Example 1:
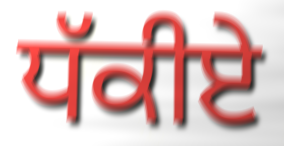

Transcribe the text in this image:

ਧੱਕੀਏ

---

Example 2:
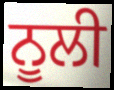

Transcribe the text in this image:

ਨੂਲੀ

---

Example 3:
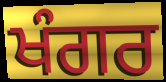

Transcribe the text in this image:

ਖੰਗਰ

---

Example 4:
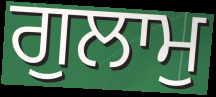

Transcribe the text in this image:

ਗੁਲਾਮੁ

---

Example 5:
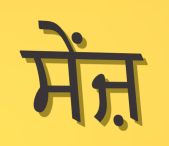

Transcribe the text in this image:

ਸੇਂਜ਼